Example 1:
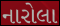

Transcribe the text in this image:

નારોલા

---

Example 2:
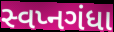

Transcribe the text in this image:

સ્વપ્નગંધા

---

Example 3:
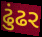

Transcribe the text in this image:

ઢુંઢર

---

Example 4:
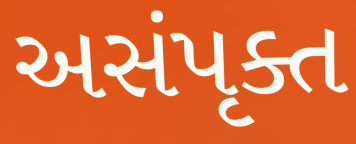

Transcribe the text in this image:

અસંપૃક્ત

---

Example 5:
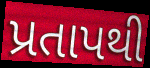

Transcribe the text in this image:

પ્રતાપથી